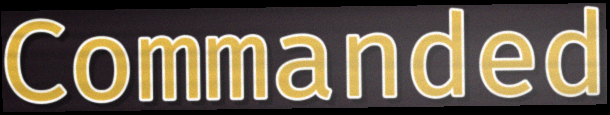
Commanded